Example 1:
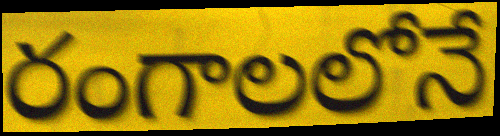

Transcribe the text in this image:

రంగాలలోనే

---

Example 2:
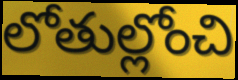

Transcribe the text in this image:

లోతుల్లోంచి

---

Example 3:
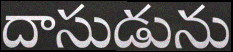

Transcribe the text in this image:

దాసుడును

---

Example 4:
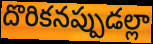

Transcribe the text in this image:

దొరికనప్పుడల్లా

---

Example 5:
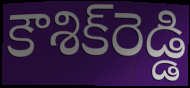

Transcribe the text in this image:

కౌశిక్‌రెడ్డి